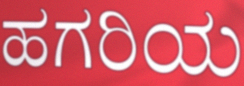
ಹಗರಿಯ